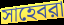
সাহেবরা